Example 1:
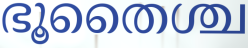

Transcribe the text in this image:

ഭൂതൈശ്ച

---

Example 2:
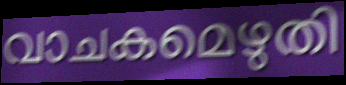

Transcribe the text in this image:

വാചകമെഴുതി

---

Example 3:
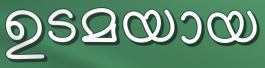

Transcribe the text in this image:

ഉടമയായ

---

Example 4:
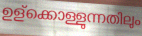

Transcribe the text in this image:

ഉള്ക്കൊള്ളുന്നതിലും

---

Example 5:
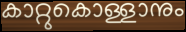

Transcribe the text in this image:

കാറ്റുകൊള്ളാനും